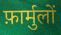
फ़ार्मुलों